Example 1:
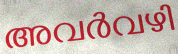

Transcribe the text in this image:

അവർവഴി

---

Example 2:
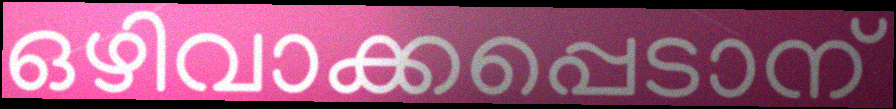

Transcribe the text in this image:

ഒഴിവാക്കപ്പെടാന്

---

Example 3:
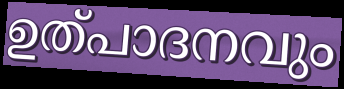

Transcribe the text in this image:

ഉത്പാദനവും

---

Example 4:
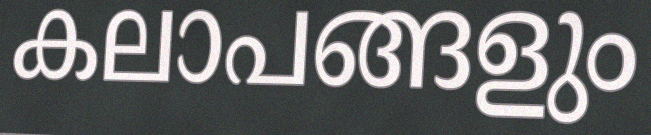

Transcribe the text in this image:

കലാപങ്ങളും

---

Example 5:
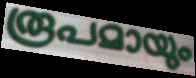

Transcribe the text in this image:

രൂപമായും